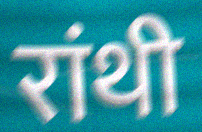
रांथी